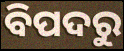
ବିପଦରୁ